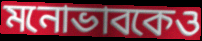
মনোভাবকেও